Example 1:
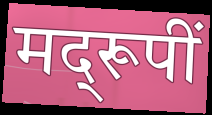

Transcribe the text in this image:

मद्‌रूपीं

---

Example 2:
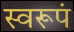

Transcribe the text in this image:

स्वरूपं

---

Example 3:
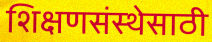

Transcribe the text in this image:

शिक्षणसंस्थेसाठी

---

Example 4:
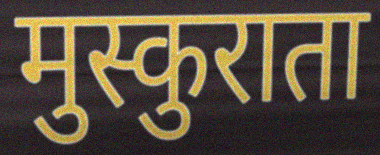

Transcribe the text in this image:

मुस्कुराता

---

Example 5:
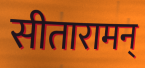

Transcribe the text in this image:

सीतारामन्